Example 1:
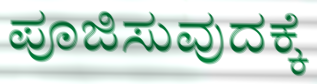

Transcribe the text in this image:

ಪೂಜಿಸುವುದಕ್ಕೆ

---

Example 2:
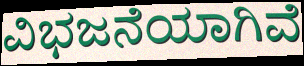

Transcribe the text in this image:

ವಿಭಜನೆಯಾಗಿವೆ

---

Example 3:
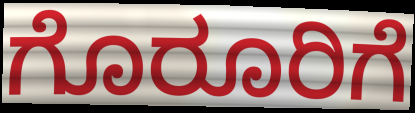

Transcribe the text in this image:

ಗೊರೂರಿಗೆ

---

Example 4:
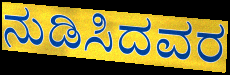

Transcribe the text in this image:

ನುಡಿಸಿದವರ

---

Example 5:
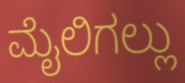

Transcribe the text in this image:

ಮೈಲಿಗಲ್ಲು